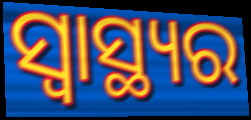
ସ୍ୱାସ୍ଥ୍ୟର